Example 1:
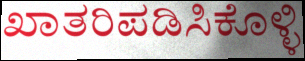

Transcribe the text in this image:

ಖಾತರಿಪಡಿಸಿಕೊಳ್ಳಿ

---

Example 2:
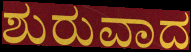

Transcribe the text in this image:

ಶುರುವಾದ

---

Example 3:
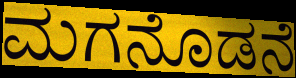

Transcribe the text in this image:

ಮಗನೊಡನೆ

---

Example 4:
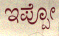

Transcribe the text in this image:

ಇಪ್ಪೋ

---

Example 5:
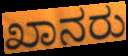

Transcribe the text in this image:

ಖಾನರು